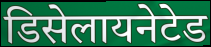
डिसेलायनेटेड